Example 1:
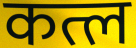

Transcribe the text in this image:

कत्ल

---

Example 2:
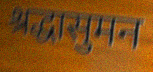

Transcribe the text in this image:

श्रद्धासुमन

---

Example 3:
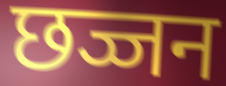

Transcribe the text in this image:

छज्जन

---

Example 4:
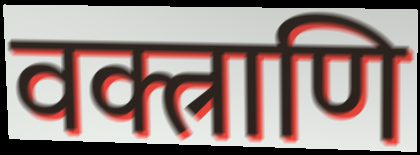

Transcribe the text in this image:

वक्त्राणि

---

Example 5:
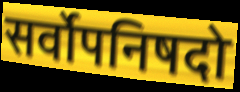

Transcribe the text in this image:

सर्वोपनिषदो